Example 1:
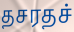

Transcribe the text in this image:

தசரதச்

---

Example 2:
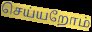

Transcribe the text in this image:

செய்யறோம்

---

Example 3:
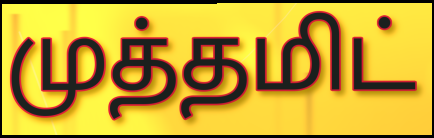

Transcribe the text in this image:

முத்தமிட்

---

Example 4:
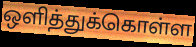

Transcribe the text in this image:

ஒளித்துக்கொள்ள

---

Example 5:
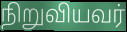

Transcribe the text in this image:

நிறுவியவர்